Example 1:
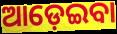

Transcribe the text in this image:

ଆଡ଼େଇବା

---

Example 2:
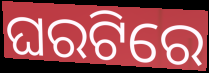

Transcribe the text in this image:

ଘରଟିରେ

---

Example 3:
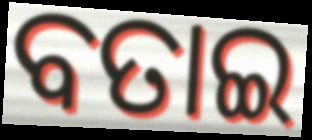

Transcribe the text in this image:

ବତାଇ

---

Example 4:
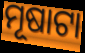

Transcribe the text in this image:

ମୂଷାଟା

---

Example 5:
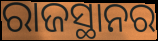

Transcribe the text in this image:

ରାଜସ୍ଥାନର